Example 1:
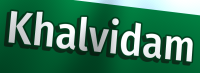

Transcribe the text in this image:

Khalvidam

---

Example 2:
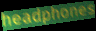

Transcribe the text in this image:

headphones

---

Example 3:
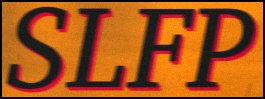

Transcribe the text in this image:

SLFP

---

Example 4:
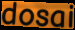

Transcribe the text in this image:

dosai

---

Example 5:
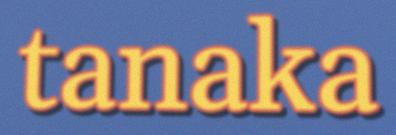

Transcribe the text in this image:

tanaka